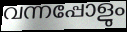
വന്നപ്പോളും